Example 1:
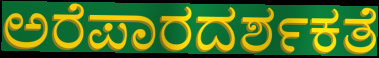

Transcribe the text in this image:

ಅರೆಪಾರದರ್ಶಕತೆ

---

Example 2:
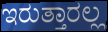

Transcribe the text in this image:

ಇರುತ್ತಾರಲ್ಲ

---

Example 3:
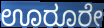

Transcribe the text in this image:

ಊರೂರೇ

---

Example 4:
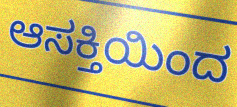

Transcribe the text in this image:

ಆಸಕ್ತಿಯಿಂದ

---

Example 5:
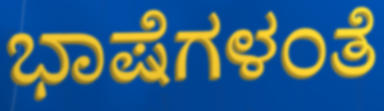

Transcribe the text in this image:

ಭಾಷೆಗಳಂತೆ